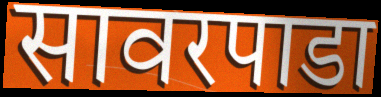
सावरपाडा